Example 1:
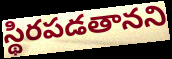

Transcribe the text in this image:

స్థిరపడతానని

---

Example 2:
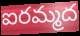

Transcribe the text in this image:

ఐరమ్మద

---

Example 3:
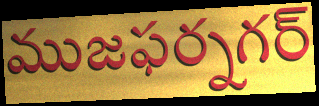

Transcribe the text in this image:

ముజఫర్నగర్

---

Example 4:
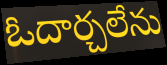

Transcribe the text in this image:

ఓదార్చలేను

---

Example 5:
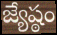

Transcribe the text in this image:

జ్యేష్ఠం